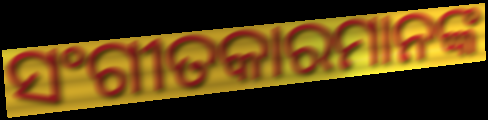
ସଂଗୀତକାରମାନଙ୍କ